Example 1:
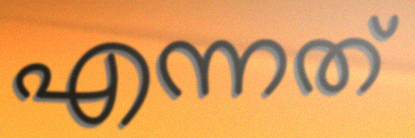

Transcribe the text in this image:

എന്നത്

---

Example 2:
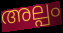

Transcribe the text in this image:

അല്പം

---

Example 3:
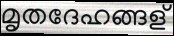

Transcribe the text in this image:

മൃതദേഹങ്ങള്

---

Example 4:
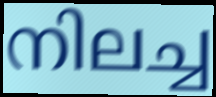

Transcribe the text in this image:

നിലച്ച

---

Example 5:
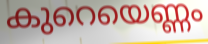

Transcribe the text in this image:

കുറെയെണ്ണം